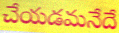
చేయడమనేదే